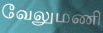
வேலுமணி